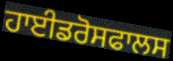
ਹਾਈਡਰੋਸਫਾਲਸ